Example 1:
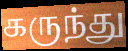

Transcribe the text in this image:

கருந்து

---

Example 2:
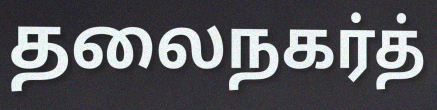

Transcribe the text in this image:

தலைநகர்த்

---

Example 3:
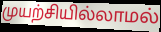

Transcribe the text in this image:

முயற்சியில்லாமல்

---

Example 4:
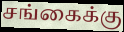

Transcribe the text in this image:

சங்கைக்கு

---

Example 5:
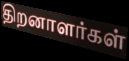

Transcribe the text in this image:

திறனாளர்கள்